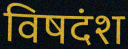
विषदंश